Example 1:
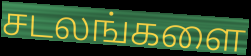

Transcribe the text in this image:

சடலங்களை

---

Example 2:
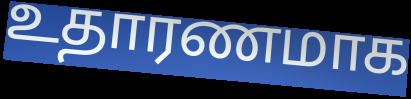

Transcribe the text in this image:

உதாரணமாக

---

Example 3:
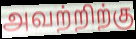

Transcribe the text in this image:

அவற்றிற்கு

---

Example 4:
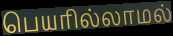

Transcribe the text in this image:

பெயரில்லாமல்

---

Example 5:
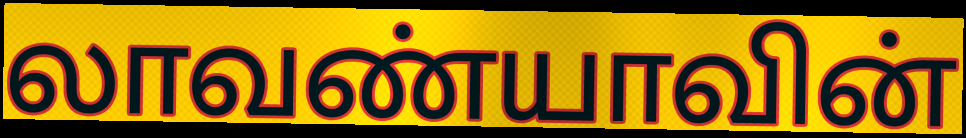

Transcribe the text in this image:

லாவண்யாவின்